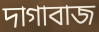
দাগাবাজ